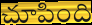
చూపింది